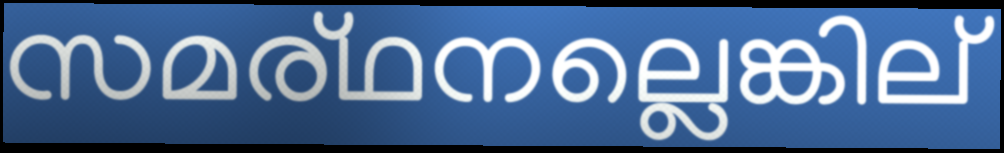
സമര്ഥനല്ലെങ്കില്